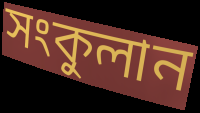
সংকুলান